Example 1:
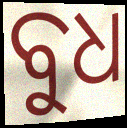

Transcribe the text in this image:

ବୁଧ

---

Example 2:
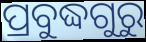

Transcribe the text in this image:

ପ୍ରବୁଦ୍ଧଗୁରୁ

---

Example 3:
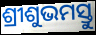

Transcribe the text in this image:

ଶ୍ରୀଶୁଭମସ୍ତୁ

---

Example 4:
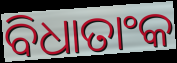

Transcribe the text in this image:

ବିଧାତାଂକ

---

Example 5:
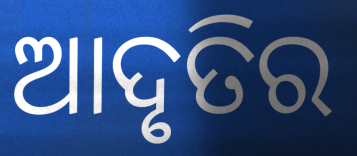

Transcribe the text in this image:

ଆଦୃତିର